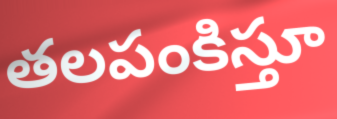
తలపంకిస్తూ